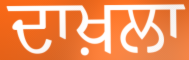
ਦਾਖ਼ਲਾ